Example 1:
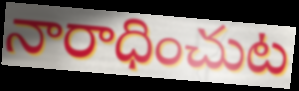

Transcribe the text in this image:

నారాధించుట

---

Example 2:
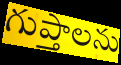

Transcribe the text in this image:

గుప్తాలను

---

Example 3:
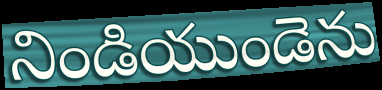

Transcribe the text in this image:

నిండియుండెను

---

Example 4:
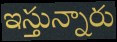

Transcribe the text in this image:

ఇస్తున్నారు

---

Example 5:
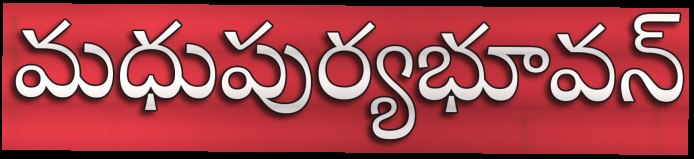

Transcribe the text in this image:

మధుపుర్యభూవన్